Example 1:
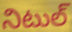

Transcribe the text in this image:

నిటుల్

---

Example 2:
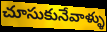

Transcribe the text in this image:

చూసుకునేవాళ్ళు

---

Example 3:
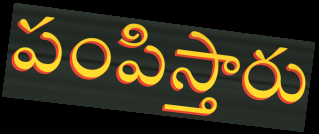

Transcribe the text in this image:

పంపిస్తారు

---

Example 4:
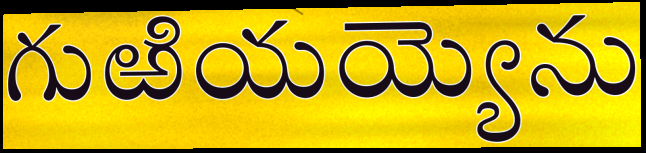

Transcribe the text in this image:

గుఱియయ్యెను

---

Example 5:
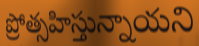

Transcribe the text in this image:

ప్రోత్సహిస్తున్నాయని